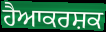
ਹੈਆਕਰਸ਼ਕ